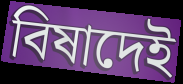
বিষাদেই